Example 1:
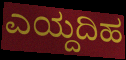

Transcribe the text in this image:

ಎಯ್ದದಿಹ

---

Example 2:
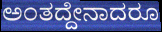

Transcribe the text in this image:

ಅಂತದ್ದೇನಾದರೂ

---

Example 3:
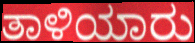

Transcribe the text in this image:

ತಾಳಿಯಾರು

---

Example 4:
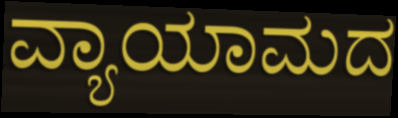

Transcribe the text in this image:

ವ್ಯಾಯಾಮದ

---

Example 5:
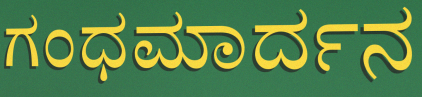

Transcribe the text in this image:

ಗಂಧಮಾರ್ದನ